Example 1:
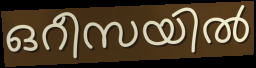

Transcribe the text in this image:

ഒറീസയിൽ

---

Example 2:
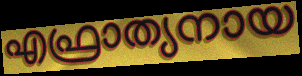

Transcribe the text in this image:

എഫ്രാത്യനായ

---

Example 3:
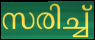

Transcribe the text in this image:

സരിച്ച്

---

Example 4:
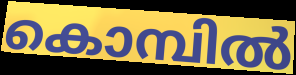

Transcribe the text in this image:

കൊമ്പിൽ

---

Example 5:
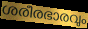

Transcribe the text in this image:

ശരീരഭാരവും